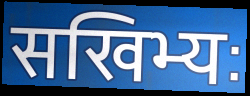
सखिभ्यः